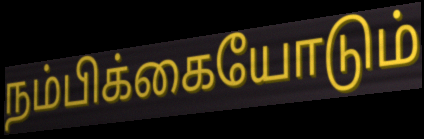
நம்பிக்கையோடும்